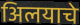
अिलयाचे